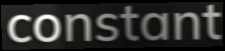
constant